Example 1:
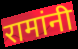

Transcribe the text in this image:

रामांनी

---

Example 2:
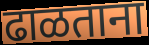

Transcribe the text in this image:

ढाळताना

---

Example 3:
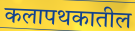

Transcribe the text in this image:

कलापथकातील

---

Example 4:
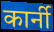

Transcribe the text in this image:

कार्नी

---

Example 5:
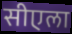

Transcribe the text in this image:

सीएला